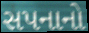
સપનાનો